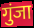
गुंजा